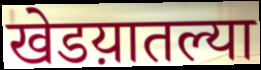
खेडय़ातल्या